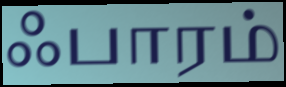
ஃபாரம்